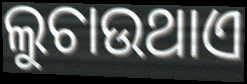
ଲୁଚାଉଥାଏ